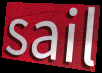
sail